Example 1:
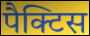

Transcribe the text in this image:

पैक्टिस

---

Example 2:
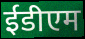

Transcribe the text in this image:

ईडीएम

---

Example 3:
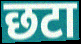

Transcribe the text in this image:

छटा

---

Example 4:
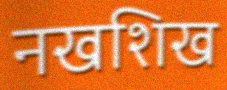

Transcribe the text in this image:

नखशिख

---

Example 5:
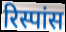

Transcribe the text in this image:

रिस्पांस